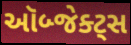
ઑબ્જેક્ટ્સ